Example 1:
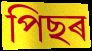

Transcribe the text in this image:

পিছৰ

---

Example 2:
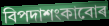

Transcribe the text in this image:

বিপদাশংকাবোৰ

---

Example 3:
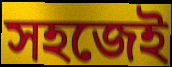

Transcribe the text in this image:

সহজেই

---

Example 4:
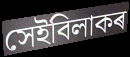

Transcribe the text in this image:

সেইবিলাকৰ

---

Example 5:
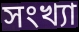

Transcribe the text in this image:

সংখ্যা